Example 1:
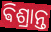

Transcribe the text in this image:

ଵିଶ୍ରାନ୍ତ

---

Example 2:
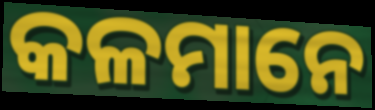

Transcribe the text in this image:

କଳମାନେ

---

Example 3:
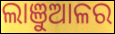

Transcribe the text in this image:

ଲାଞୁଆଳର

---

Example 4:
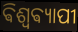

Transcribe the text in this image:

ଵିଶ୍ଵଵ୍ୟାପୀ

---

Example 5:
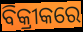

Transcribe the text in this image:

ବିକ୍ରୀକରେ